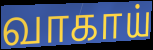
வாகாய்